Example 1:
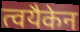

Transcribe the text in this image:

त्वयैकेन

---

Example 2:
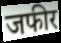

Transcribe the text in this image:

जफीर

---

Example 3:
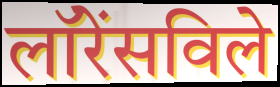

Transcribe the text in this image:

लॉरेंसविले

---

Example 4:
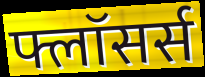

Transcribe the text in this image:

फ्लॉसर्स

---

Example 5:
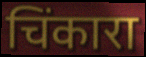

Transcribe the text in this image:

चिंकारा